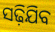
ସଢ଼ିଯିବ